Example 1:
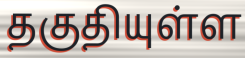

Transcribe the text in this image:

தகுதியுள்ள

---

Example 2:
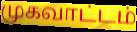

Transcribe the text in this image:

முகவாட்டம்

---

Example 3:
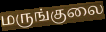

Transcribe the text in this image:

மருங்குலை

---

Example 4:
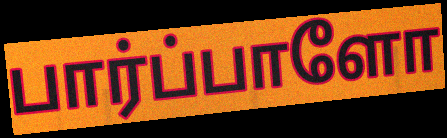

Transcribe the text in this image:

பார்ப்பாளோ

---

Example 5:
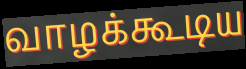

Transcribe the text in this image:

வாழக்கூடிய